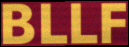
BLLF